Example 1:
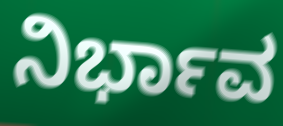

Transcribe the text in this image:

ನಿರ್ಭಾವ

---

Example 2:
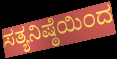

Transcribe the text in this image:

ಸತ್ಯನಿಷ್ಠೆಯಿಂದ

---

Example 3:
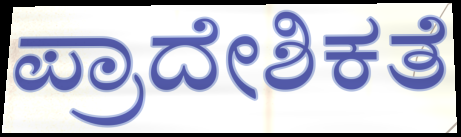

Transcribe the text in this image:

ಪ್ರಾದೇಶಿಕತೆ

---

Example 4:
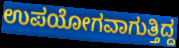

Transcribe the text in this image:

ಉಪಯೋಗವಾಗುತ್ತಿದ್ದ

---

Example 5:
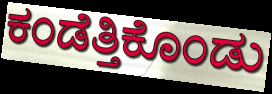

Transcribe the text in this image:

ಕಂಡೆತ್ತಿಕೊಂಡು